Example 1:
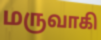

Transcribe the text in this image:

மருவாகி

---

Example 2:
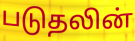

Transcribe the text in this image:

படுதலின்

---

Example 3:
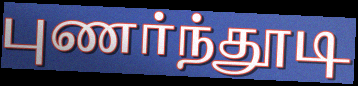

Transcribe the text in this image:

புணர்ந்தூடி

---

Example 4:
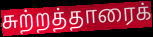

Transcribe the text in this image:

சுற்றத்தாரைக்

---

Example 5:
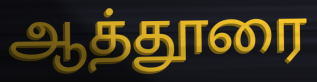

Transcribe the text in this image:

ஆத்தூரை